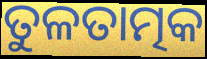
ତୁଳତାତ୍ମକ